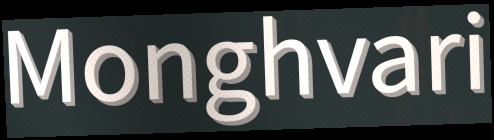
Monghvari